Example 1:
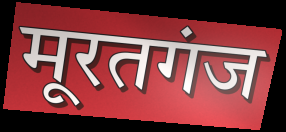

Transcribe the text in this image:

मूरतगंज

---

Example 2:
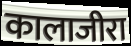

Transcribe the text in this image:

कालाजीरा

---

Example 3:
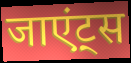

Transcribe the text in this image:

जाएंट्स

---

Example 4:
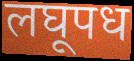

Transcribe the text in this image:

लघूपध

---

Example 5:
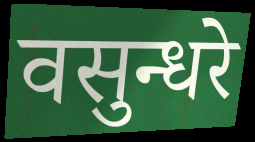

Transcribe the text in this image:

वसुन्धरे